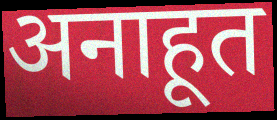
अनाहूत